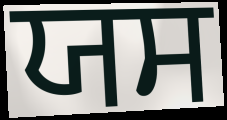
ਯਸ